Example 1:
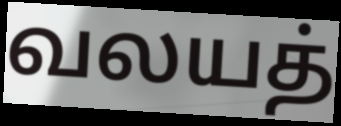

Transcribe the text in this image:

வலயத்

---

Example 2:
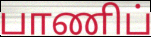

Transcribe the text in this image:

பாணிப்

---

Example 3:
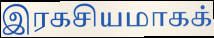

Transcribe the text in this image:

இரகசியமாகக்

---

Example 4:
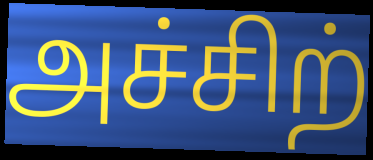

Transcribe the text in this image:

அச்சிற்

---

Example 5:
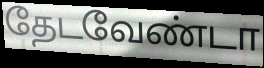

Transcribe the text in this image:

தேடவேண்டா